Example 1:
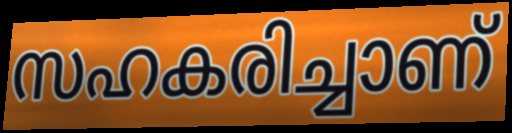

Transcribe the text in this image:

സഹകരിച്ചാണ്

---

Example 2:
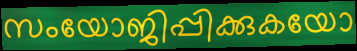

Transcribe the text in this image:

സംയോജിപ്പിക്കുകയോ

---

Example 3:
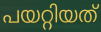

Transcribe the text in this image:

പയറ്റിയത്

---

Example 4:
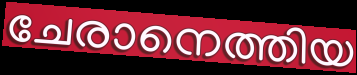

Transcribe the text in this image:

ചേരാനെത്തിയ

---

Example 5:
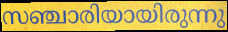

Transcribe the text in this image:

സഞ്ചാരിയായിരുന്നു